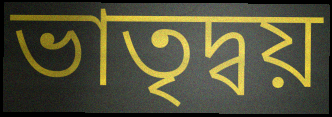
ভাতৃদ্বয়